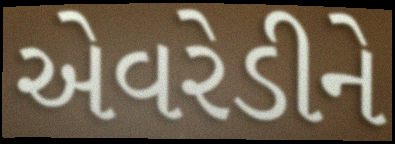
એવરેડીને